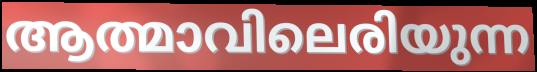
ആത്മാവിലെരിയുന്ന